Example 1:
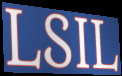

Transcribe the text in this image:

LSIL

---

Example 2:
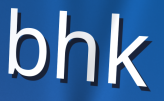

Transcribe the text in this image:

bhk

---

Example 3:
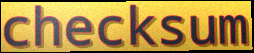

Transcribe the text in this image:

checksum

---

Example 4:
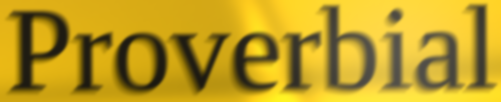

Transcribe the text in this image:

Proverbial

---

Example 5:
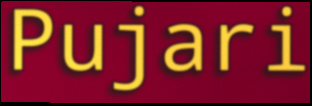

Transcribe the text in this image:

Pujari